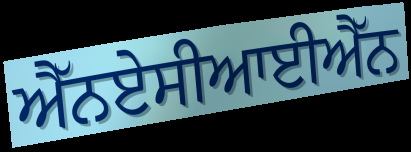
ਐੱਨਏਸੀਆਈਐੱਨ